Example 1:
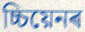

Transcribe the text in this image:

চ্চিয়েনৰ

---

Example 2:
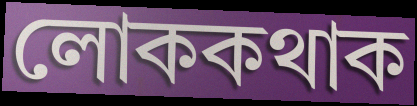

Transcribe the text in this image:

লোককথাক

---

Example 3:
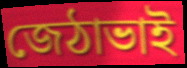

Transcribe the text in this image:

জেঠাভাই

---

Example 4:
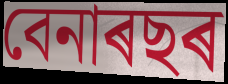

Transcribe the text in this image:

বেনাৰছৰ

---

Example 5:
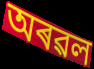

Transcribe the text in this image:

অৰৱল